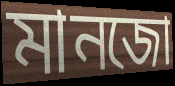
মানজো